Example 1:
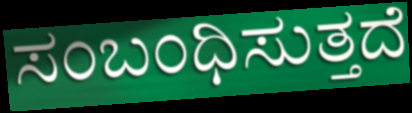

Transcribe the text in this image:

ಸಂಬಂಧಿಸುತ್ತದೆ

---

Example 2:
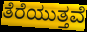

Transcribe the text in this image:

ತೆರೆಯುತ್ತವೆ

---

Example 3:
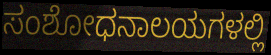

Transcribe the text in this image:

ಸಂಶೋಧನಾಲಯಗಳಲ್ಲಿ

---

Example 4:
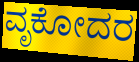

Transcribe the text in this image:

ವೃಕೋದರ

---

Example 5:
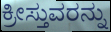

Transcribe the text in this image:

ಕ್ರೀಸ್ತುವರನ್ನು